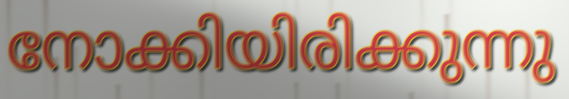
നോക്കിയിരിക്കുന്നു